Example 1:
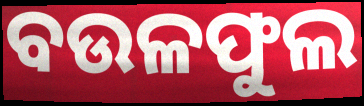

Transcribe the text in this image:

ବଉଳଫୁଲ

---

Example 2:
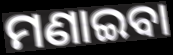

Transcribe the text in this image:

ମଣାଇବା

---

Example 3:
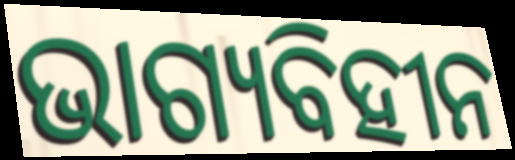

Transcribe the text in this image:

ଭାଗ୍ୟବିହୀନ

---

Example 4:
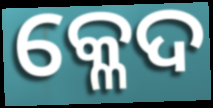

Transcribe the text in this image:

କ୍ଳେଦ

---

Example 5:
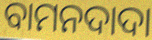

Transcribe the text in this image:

ବାମନଦାଦା